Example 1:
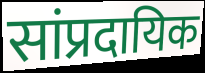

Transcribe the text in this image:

सांप्रदायिक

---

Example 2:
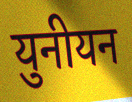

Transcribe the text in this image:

युनीयन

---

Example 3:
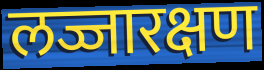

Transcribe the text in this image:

लज्जारक्षण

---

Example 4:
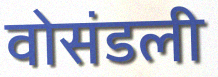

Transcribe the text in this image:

वोसंडली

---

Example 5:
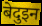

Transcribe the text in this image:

बेदुइन